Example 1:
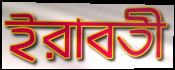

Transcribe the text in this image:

ইরাবতী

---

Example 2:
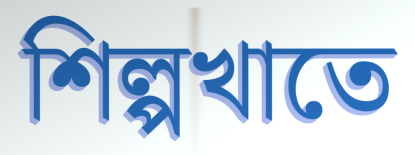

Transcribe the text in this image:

শিল্পখাতে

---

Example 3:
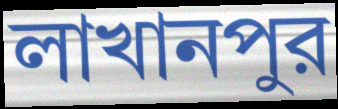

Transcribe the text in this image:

লাখানপুর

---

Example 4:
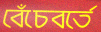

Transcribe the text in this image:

বেঁচেবর্তে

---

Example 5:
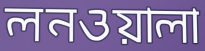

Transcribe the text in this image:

লনওয়ালা